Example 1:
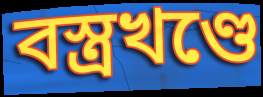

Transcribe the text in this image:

বস্ত্রখণ্ডে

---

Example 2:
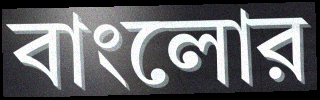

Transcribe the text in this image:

বাংলোর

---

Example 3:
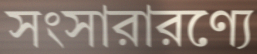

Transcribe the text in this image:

সংসারারণ্যে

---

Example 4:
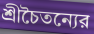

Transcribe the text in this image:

শ্রীচৈতন্যের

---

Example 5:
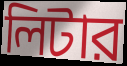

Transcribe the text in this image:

লিটার